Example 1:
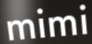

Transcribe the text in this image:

mimi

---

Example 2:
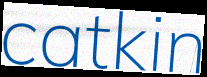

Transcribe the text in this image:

catkin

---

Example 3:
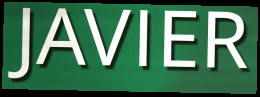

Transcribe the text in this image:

JAVIER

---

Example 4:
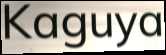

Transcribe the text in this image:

Kaguya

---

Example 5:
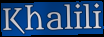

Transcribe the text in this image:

Khalili